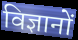
विज्ञानों